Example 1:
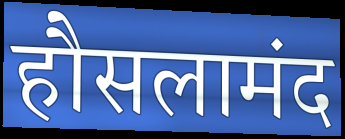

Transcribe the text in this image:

हौसलामंद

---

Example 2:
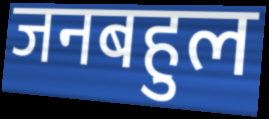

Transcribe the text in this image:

जनबहुल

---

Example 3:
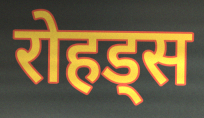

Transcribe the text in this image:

रोहड्स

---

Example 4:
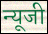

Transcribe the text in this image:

न्यूजी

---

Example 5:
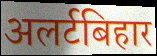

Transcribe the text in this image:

अलर्टबिहार